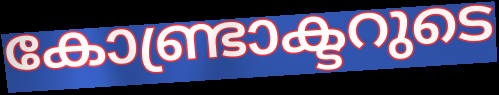
കോണ്ട്രാക്ടറുടെ